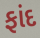
ફાંદ